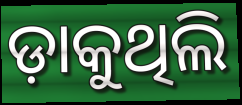
ଡ଼ାକୁଥିଲି